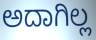
ಅದಾಗಿಲ್ಲ